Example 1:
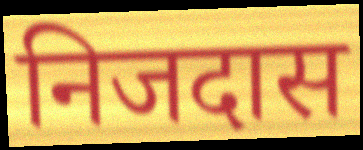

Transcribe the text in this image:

निजदास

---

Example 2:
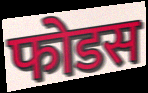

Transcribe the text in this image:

फोडस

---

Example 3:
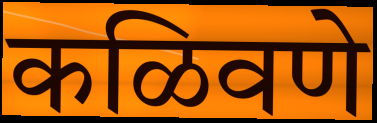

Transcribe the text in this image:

कळिवणे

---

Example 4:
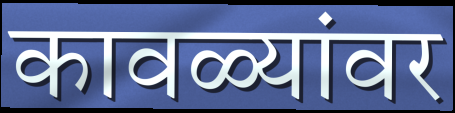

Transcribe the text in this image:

कावळ्यांवर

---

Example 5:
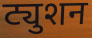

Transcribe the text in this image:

ट्युशन